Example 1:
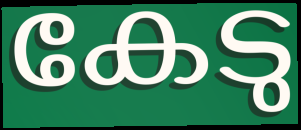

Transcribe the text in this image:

കേടു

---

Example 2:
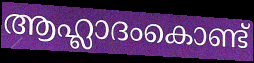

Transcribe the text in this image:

ആഹ്ലാദംകൊണ്ട്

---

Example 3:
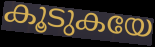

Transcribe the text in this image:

കൂടുകയേ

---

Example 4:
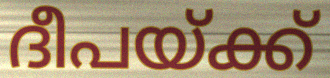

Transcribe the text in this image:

ദീപയ്ക്ക്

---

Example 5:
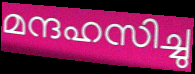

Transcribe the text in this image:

മന്ദഹസിച്ചു